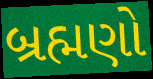
બ્રહ્મણો